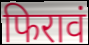
फिरावं